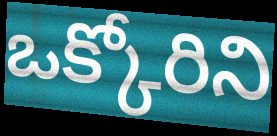
ఒక్కోరిని